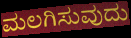
ಮಲಗಿಸುವುದು